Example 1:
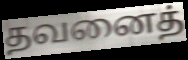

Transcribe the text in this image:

தவனைத்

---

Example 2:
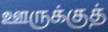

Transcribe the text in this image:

ஊருக்குத்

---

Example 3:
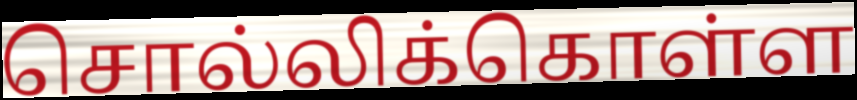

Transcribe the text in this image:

சொல்லிக்கொள்ள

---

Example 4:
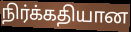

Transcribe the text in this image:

நிர்க்கதியான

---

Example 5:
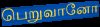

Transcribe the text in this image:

பெறுவானோ